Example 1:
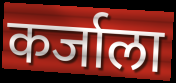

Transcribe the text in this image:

कर्जाला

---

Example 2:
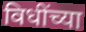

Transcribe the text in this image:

विधींच्या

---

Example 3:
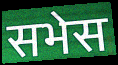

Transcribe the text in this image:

सभेस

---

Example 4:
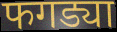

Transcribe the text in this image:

फगड्या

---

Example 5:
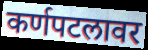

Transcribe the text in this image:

कर्णपटलावर